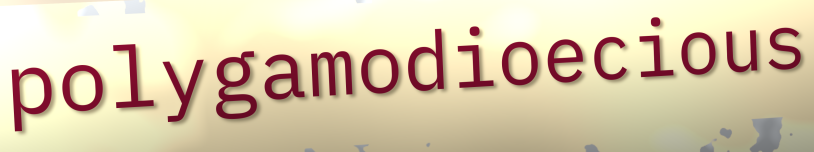
polygamodioecious